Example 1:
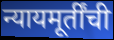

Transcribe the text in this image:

न्यायमूर्तींची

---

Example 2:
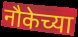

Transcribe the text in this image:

नौकेच्या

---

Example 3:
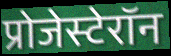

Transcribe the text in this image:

प्रोजेस्टेरॉन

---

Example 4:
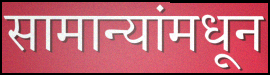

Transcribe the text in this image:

सामान्यांमधून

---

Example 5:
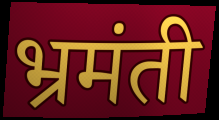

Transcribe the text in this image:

भ्रमंती